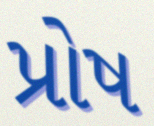
પ્રોષ